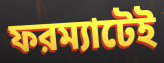
ফরম্যাটেই